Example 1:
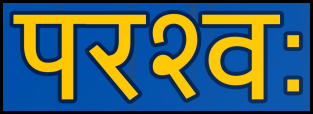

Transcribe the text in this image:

परश्वः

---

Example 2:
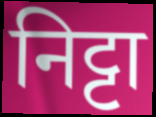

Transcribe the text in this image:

निट्टा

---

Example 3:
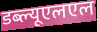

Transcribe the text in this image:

डब्ल्यूएलएल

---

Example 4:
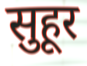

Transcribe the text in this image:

सुहूर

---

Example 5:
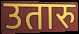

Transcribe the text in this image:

उतारु